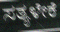
ಸತ್ಯಳೇಕೆ